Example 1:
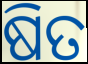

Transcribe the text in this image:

ଷିତ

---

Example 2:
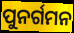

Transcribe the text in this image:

ପୁନର୍ଗମନ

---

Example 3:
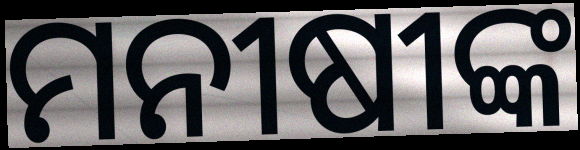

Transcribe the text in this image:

ମନୀଷୀଙ୍କ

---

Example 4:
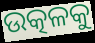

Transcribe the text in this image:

ଉତ୍କଳକୁ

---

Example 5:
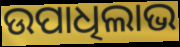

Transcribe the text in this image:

ଉପାଧିଲାଭ